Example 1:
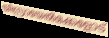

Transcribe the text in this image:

യിസ്രായേൽമക്കളോട്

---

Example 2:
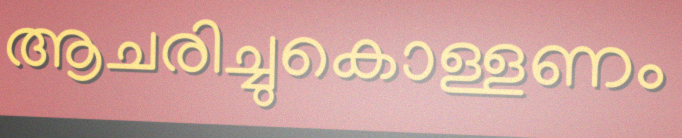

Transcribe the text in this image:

ആചരിച്ചുകൊള്ളണം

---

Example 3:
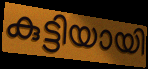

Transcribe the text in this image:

കുട്ടിയായി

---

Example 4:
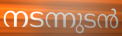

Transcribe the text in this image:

നടന്നുടൻ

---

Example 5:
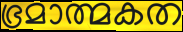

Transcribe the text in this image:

ഭ്രമാത്മകത